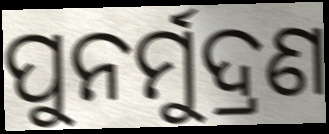
ପୁନର୍ମୁଦ୍ରଣ